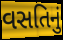
વસતિનું